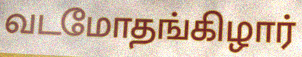
வடமோதங்கிழார்